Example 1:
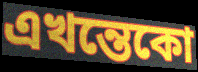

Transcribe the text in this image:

এখন্তেকো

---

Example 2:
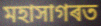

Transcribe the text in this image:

মহাসাগৰত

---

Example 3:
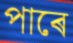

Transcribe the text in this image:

পাৰে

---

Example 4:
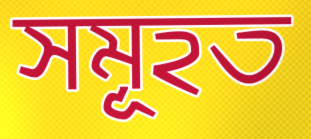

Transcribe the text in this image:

সমূহত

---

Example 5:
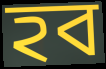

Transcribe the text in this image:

হব